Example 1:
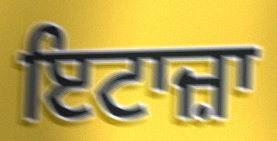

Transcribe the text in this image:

ਇਟਾਜ਼ਾ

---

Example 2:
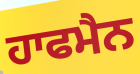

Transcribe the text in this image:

ਹਾਫਮੈਨ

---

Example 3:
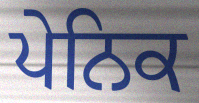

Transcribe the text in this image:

ਪੇਨਿਕ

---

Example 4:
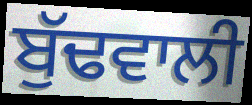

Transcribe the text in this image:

ਬੁੱਢਵਾਲੀ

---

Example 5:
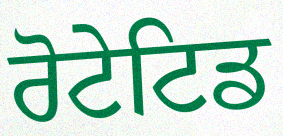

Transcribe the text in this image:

ਰੋਟੇਟਿਡ